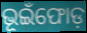
ଭୂଇଁଫୋଡ଼